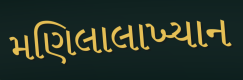
મણિલાલાખ્યાન